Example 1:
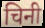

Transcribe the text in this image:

चिनी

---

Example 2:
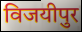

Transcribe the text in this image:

विजयीपुर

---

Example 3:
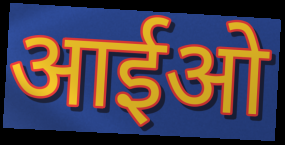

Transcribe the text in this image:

आईओ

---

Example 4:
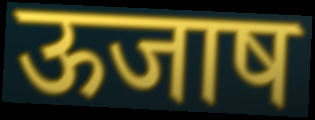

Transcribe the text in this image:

ऊजाष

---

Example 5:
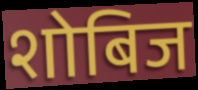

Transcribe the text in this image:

शोबिज